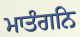
ਮਾਤੰਗਨਿ